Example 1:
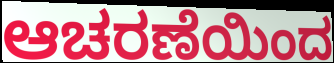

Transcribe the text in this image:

ಆಚರಣೆಯಿಂದ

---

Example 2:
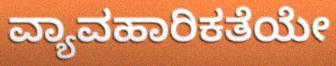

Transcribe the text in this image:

ವ್ಯಾವಹಾರಿಕತೆಯೇ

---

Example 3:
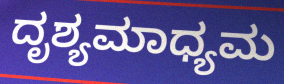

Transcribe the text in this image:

ದೃಶ್ಯಮಾಧ್ಯಮ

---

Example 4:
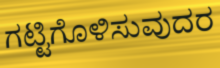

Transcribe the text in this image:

ಗಟ್ಟಿಗೊಳಿಸುವುದರ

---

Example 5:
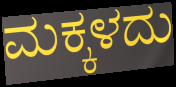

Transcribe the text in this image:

ಮಕ್ಕಳದು